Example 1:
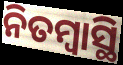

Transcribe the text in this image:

ନିତମ୍ବାସ୍ଥି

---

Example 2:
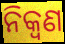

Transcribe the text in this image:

ନିକ୍ୱଣ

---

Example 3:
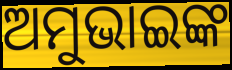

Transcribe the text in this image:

ଅମୁଭାଇଙ୍କ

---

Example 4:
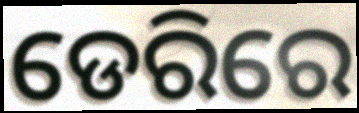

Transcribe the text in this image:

ଡେରିରେ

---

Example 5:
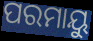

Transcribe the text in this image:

ପରମାୟୁ